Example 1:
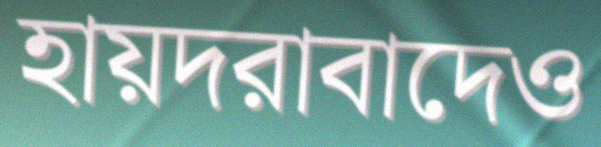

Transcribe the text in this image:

হায়দরাবাদেও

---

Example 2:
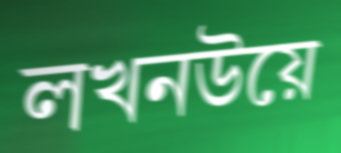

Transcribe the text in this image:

লখনউয়ে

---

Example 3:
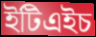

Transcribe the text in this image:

ইটিএইচ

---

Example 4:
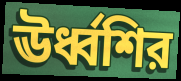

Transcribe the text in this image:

ঊর্ধ্বশির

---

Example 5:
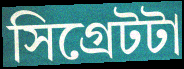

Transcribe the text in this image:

সিগ্রেটটা